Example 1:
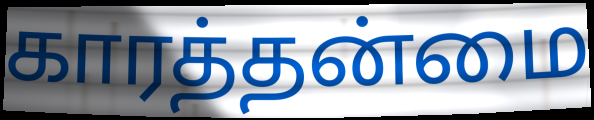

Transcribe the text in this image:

காரத்தன்மை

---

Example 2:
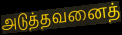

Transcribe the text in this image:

அடுத்தவனைத்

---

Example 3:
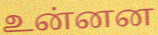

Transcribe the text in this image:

உன்னன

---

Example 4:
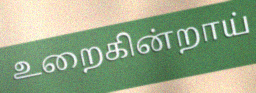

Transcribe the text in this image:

உறைகின்றாய்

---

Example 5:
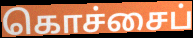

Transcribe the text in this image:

கொச்சைப்